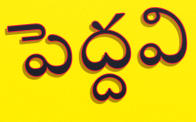
పెద్దవి